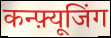
कन्फ़्यूजिंग